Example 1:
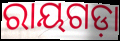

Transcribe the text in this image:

ରାୟଗଡ଼ା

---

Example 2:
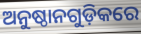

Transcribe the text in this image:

ଅନୁଷ୍ଠାନଗୁଡ଼ିକରେ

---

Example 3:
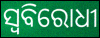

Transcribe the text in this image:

ସ୍ୱବିରୋଧୀ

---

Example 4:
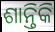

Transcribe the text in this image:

ଶାନ୍ତିକି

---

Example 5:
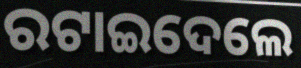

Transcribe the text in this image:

ରଟାଇଦେଲେ